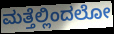
ಮತ್ತೆಲ್ಲಿಂದಲೋ